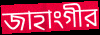
জাহাংগীর